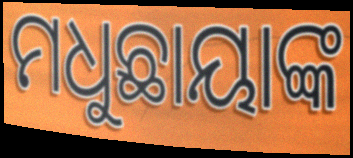
ମଧୁଛାୟାଙ୍କ